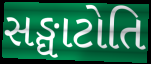
સઙ્ઘાટોતિ